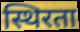
स्थिरता